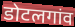
डोटलगांव